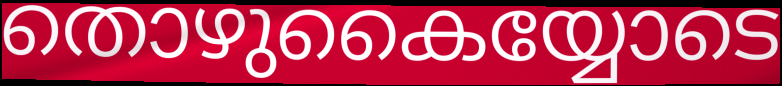
തൊഴുകൈയ്യോടെ